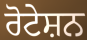
ਰੋਟੇਸ਼ਨ